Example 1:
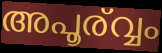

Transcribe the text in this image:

അപൂര്വ്വം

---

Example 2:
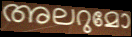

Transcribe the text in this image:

അലറുമോ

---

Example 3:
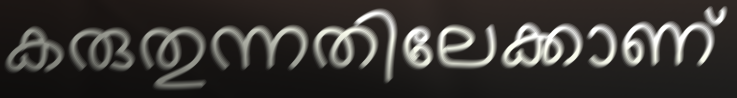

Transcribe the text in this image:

കരുതുന്നതിലേക്കാണ്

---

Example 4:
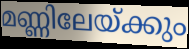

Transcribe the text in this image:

മണ്ണിലേയ്ക്കും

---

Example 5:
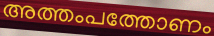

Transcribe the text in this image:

അത്തംപത്തോണം